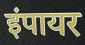
इंपायर